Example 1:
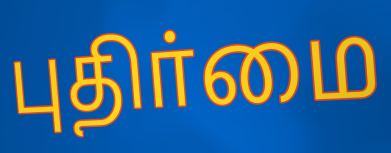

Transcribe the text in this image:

புதிர்மை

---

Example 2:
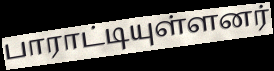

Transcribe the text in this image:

பாராட்டியுள்ளனர்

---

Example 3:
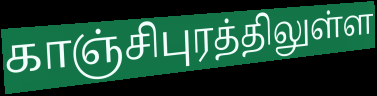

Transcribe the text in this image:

காஞ்சிபுரத்திலுள்ள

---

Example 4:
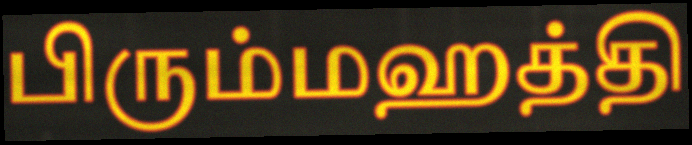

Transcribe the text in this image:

பிரும்மஹத்தி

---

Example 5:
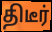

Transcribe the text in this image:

திடீர்